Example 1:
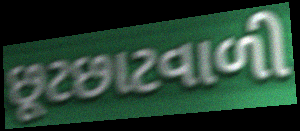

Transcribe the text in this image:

છૂટછાટવાળી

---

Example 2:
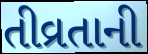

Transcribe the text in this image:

તીવ્રતાની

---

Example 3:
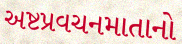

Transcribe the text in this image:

અષ્ટપ્રવચનમાતાનો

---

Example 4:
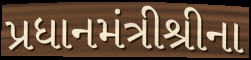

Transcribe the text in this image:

પ્રધાનમંત્રીશ્રીના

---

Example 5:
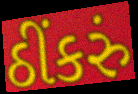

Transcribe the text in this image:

ઠીંકરું